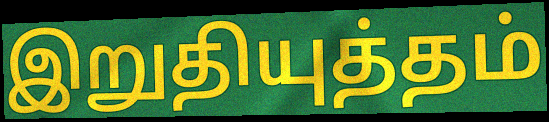
இறுதியுத்தம்